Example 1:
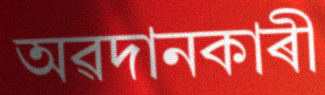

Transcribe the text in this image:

অৱদানকাৰী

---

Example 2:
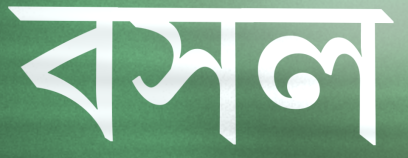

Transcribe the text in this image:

বসল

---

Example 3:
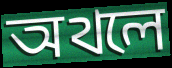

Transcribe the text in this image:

অথলে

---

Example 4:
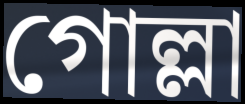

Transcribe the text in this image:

গোল্লা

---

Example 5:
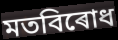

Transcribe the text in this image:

মতবিৰোধ